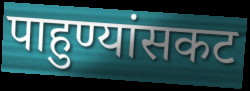
पाहुण्यांसकट